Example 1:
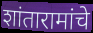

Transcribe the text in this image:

शांतारामांचे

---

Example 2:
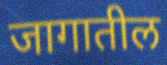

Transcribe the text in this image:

जागातील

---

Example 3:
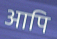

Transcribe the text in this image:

आपि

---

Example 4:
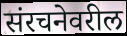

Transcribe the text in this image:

संरचनेवरील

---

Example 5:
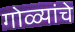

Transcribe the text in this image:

गोळ्यांचे